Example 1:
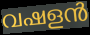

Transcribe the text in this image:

വഷളൻ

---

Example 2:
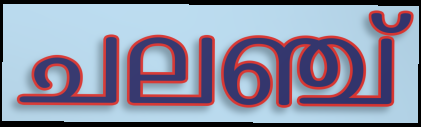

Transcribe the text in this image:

ചലഞ്ച്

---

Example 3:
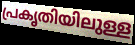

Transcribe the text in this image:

പ്രകൃതിയിലുള്ള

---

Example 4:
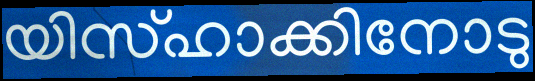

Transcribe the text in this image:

യിസ്ഹാക്കിനോടു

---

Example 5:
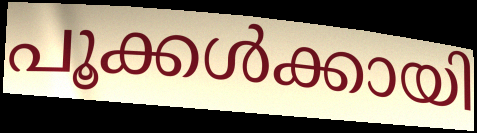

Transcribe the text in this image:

പൂക്കൾക്കായി